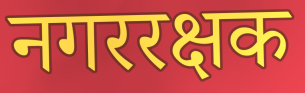
नगररक्षक